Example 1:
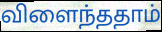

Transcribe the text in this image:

விளைந்ததாம்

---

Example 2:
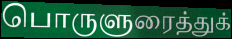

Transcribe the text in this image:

பொருளுரைத்துக்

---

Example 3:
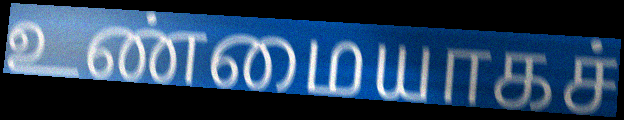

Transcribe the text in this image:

உண்மையாகச்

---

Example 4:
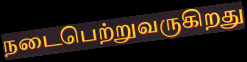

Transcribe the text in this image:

நடைபெற்றுவருகிறது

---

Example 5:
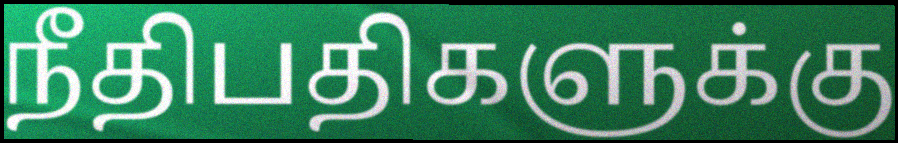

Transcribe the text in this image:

நீதிபதிகளுக்கு